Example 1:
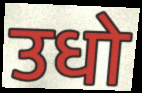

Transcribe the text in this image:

उधो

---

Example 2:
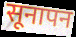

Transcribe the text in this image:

सूनापन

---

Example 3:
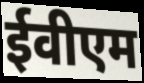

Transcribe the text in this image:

ईवीएम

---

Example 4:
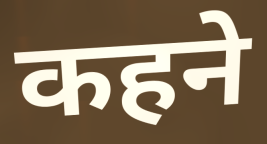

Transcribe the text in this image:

कहने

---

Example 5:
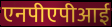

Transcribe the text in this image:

एनपीएपीआई